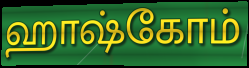
ஹாஷ்கோம்